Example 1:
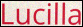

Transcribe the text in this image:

Lucilla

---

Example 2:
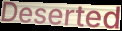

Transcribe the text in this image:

Deserted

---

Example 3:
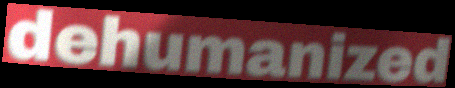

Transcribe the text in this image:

dehumanized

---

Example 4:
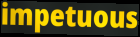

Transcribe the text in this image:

impetuous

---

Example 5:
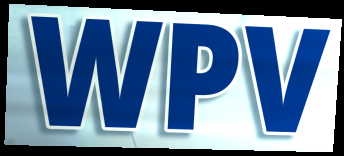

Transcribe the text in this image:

WPV